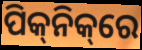
ପିକ୍‌ନିକ୍‌ରେ